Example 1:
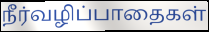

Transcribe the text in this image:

நீர்வழிப்பாதைகள்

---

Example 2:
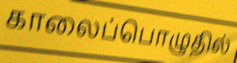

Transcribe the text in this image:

காலைப்பொழுதில்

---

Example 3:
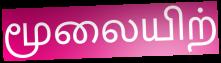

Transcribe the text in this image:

மூலையிற்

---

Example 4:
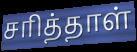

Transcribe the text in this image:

சரித்தாள்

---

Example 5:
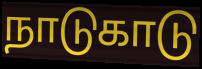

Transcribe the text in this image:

நாடுகாடு